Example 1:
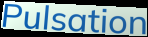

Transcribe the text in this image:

Pulsation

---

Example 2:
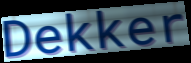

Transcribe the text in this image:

Dekker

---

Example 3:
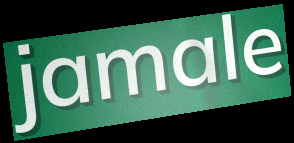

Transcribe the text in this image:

jamale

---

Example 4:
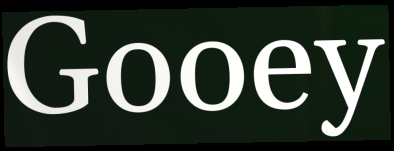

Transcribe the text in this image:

Gooey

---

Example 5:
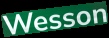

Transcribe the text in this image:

Wesson